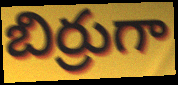
బిర్రుగా